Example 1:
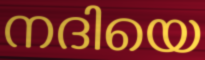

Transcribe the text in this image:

നദിയെ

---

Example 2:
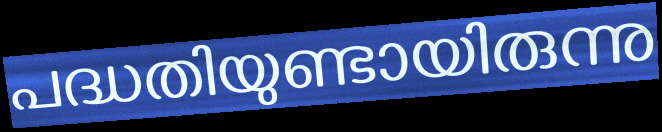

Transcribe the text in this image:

പദ്ധതിയുണ്ടായിരുന്നു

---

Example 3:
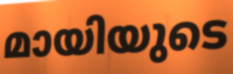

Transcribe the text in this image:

മായിയുടെ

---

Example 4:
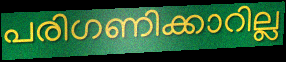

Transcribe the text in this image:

പരിഗണിക്കാറില്ല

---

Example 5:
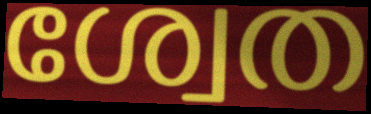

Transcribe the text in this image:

ശ്വേത